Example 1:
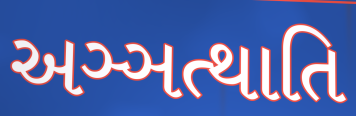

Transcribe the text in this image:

અઞ્ઞત્થાતિ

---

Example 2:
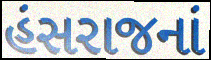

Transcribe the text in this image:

હંસરાજનાં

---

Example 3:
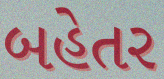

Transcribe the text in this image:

બહેતર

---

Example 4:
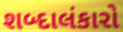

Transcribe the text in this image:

શબ્દાલંકારો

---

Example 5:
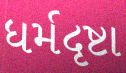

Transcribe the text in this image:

ધર્મદૃષ્ટા